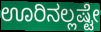
ಊರಿನಲ್ಲಷ್ಟೇ